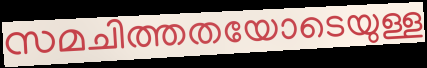
സമചിത്തതയോടെയുള്ള